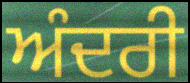
ਅੰਦਰੀ